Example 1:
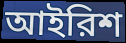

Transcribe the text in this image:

আইরিশ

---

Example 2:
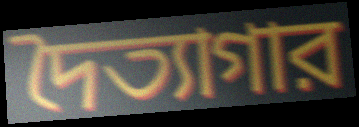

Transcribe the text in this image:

দৈত্যাগার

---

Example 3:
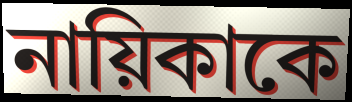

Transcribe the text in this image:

নায়িকাকে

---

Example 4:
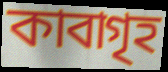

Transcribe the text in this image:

কাবাগৃহ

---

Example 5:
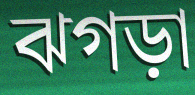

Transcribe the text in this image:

ঝগড়া